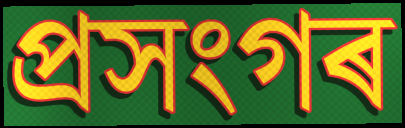
প্ৰসংগৰ